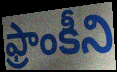
ఫ్రాంకీని